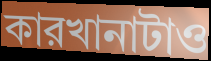
কারখানাটাও